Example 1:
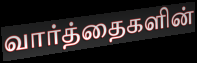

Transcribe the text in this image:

வார்த்தைகளின்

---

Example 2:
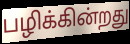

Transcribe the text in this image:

பழிக்கின்றது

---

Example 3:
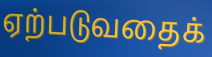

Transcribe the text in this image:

ஏற்படுவதைக்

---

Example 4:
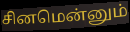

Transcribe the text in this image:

சினமென்னும்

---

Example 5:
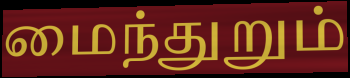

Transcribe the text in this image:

மைந்துறும்